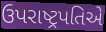
ઉપરાષ્ટ્રપતિએ